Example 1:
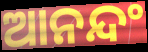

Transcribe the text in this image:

ଆନନ୍ଦଂ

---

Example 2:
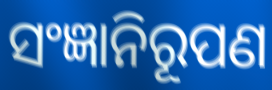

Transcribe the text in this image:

ସଂଜ୍ଞାନିରୂପଣ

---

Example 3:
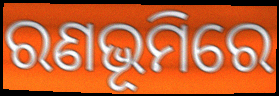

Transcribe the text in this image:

ରଣଭୂମିରେ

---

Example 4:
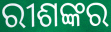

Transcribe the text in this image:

ରୀଶଙ୍କର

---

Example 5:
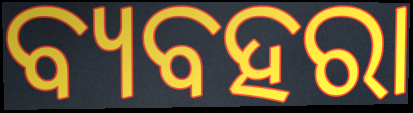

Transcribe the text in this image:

ବ୍ୟବହରା